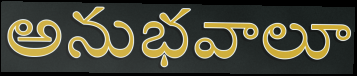
అనుభవాలూ